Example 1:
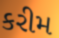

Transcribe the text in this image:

કરીમ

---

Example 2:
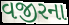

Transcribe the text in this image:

વજીરના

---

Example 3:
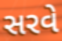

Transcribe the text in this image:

સરવે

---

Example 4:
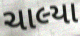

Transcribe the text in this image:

ચાલ્યા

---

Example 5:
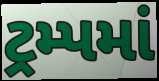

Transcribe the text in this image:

ટ્રમ્પમાં